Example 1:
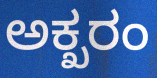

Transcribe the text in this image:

ಅಕ್ಖರಂ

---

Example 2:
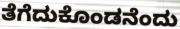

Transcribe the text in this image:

ತೆಗೆದುಕೊಂಡನೆಂದು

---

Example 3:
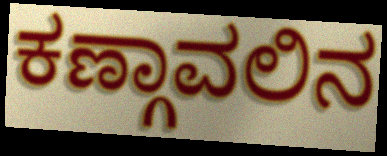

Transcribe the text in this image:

ಕಣ್ಗಾವಲಿನ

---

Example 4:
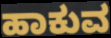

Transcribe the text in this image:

ಹಾಕುವ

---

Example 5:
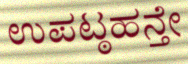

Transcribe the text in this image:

ಉಪಟ್ಠಹನ್ತೇ